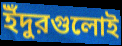
ইঁদুরগুলোই